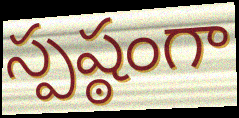
స్పష్ఠంగా